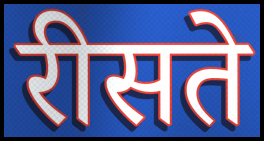
रीसते